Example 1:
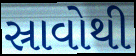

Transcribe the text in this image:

સ્રાવોથી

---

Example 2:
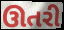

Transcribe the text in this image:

ઊતરી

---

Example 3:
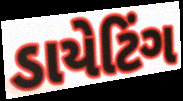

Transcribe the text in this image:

ડાયેટિંગ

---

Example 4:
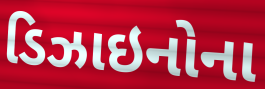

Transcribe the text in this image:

ડિઝાઇનોના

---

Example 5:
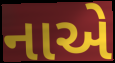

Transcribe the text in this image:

નાએ